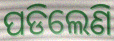
ପଡିଲେଣି